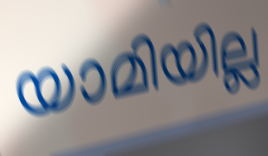
യാമിയില്ല